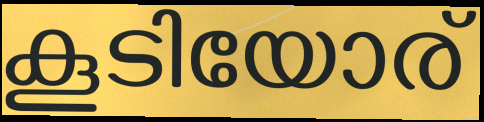
കൂടിയോര്